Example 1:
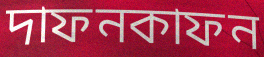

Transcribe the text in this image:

দাফনকাফন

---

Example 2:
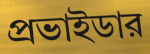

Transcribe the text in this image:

প্রভাইডার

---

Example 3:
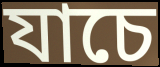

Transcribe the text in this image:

যাচে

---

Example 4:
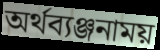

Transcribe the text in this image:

অর্থব্যঞ্জনাময়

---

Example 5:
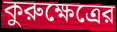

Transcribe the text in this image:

কুরুক্ষেত্রের